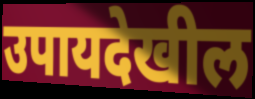
उपायदेखील